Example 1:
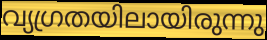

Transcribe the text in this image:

വ്യഗ്രതയിലായിരുന്നു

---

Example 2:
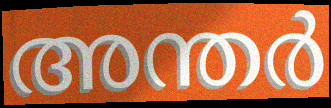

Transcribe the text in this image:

അന്തർ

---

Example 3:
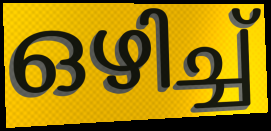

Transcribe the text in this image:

ഒഴിച്ച്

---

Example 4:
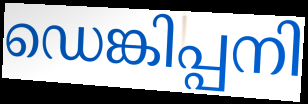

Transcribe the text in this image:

ഡെങ്കിപ്പനി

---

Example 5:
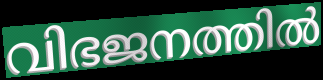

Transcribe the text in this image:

വിഭജനത്തിൽ